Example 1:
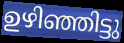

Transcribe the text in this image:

ഉഴിഞ്ഞിട്ടു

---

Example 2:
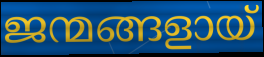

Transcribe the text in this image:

ജന്മങ്ങളായ്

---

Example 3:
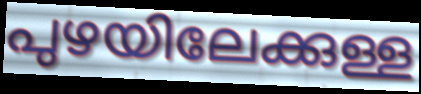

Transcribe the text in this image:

പുഴയിലേക്കുള്ള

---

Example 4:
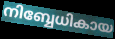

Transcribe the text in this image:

നിബ്ബേധികായ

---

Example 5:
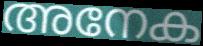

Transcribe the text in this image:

അനേക